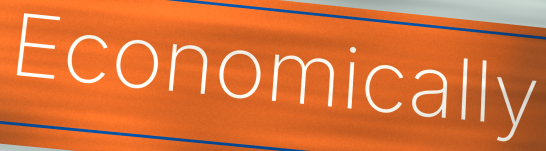
Economically